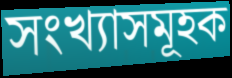
সংখ্যাসমূহক